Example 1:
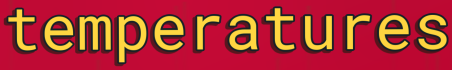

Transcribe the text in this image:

temperatures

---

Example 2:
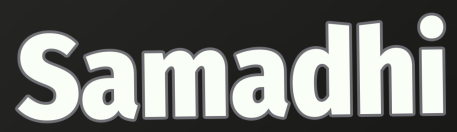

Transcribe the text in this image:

Samadhi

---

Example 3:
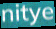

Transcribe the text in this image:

nitye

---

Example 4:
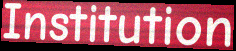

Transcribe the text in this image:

Institution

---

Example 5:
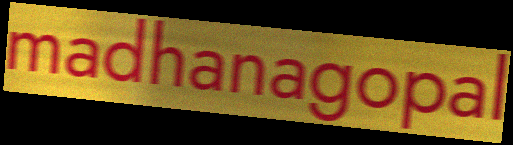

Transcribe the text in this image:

madhanagopal